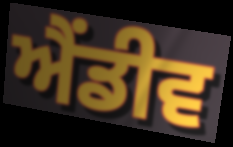
ਐਂਡੀਵ